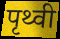
पृथ्वी